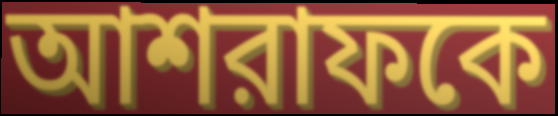
আশরাফকে